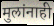
मुलांनाही